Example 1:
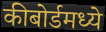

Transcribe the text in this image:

कीबोर्डमध्ये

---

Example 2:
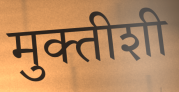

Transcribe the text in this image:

मुक्तीशी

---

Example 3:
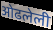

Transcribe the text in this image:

ओढलेली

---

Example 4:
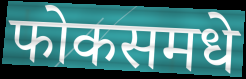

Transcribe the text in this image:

फोकसमधे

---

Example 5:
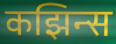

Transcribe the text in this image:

कझिन्स